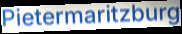
Pietermaritzburg